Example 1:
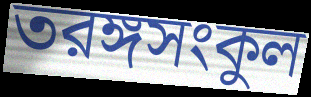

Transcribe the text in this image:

তরঙ্গসংকুল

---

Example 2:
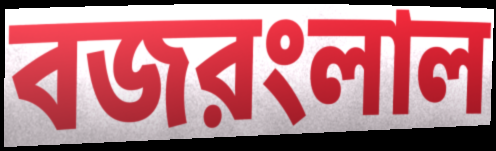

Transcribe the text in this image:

বজরংলাল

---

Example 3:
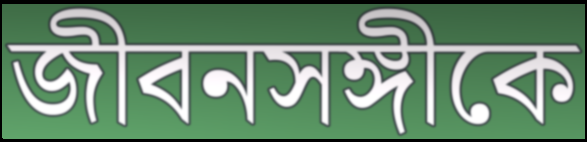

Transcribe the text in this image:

জীবনসঙ্গীকে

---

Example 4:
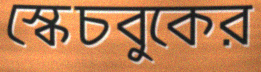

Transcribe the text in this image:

স্কেচবুকের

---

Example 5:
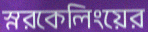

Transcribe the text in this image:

স্নরকেলিংয়ের